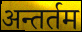
अन्तर्तम